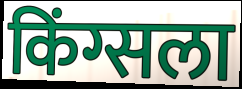
किंग्सला